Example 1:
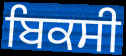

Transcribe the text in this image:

ਬਿਕਸੀ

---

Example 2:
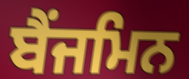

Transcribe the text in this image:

ਬੈਂਜਮਿਨ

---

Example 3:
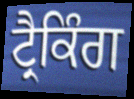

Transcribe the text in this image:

ਟ੍ਰੈਕਿੰਗ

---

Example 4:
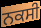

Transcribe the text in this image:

ਨਕਸੀ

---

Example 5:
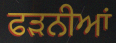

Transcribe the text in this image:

ਫੜਨੀਆਂ